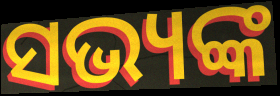
ସଭ୍ୟଙ୍କ